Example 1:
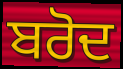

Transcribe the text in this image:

ਬਰੋਦ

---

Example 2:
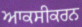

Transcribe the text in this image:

ਆਕਸੀਕਰਨ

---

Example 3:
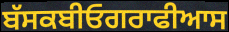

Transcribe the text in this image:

ਬੱਸਕਬੀਓਗਰਾਫੀਆਸ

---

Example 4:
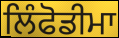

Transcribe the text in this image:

ਲਿੰਫੋਡੀਮਾ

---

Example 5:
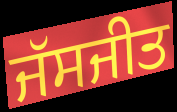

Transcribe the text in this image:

ਜੱਸਜੀਤ